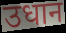
उधान